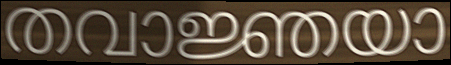
തവാജ്ഞയാ